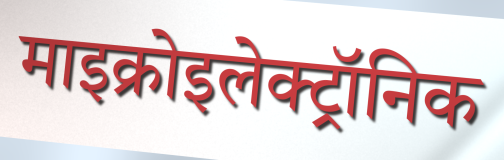
माइक्रोइलेक्ट्रॉनिक